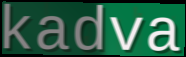
kadva